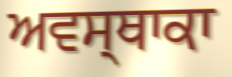
ਅਵਸ੍ਥਾਕਾ